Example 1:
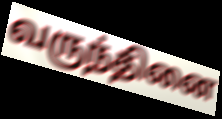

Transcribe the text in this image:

வருந்தினை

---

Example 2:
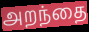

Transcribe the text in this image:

அறந்தை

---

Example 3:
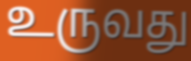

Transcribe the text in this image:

உருவது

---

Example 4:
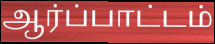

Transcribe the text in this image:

ஆர்ப்பாட்டம்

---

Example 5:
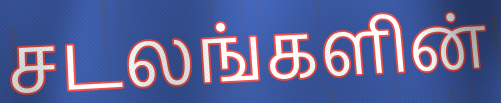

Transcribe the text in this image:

சடலங்களின்